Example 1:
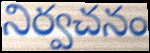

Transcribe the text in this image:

నిర్వచనం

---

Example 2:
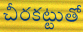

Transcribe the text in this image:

చీరకట్టుతో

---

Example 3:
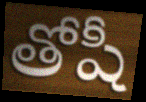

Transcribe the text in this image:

తోషీ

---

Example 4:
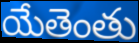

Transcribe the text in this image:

యేతెంతు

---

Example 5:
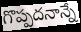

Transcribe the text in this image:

గొప్పదనాన్నే